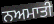
ਨਅਮਾਤੀ